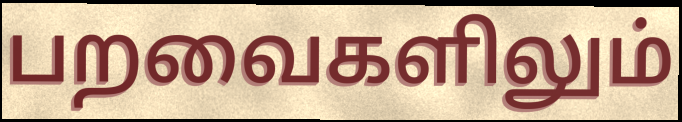
பறவைகளிலும்